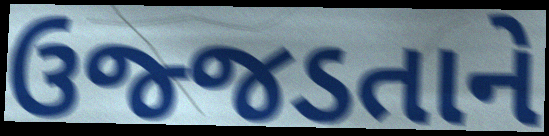
ઉજ્જડતાને